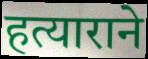
हत्याराने